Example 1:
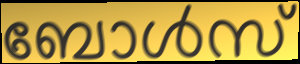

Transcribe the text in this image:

ബോൾസ്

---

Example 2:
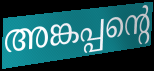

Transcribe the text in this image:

അങ്കപ്പന്റെ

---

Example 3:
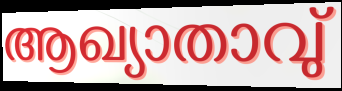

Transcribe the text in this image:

ആഖ്യാതാവു്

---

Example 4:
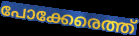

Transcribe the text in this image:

പോക്കേരെത്ത്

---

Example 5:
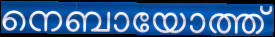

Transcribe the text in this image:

നെബായോത്ത്